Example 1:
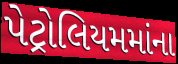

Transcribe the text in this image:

પેટ્રોલિયમમાંના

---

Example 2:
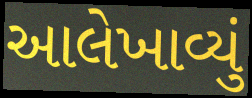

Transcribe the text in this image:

આલેખાવ્યું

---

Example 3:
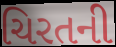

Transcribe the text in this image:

ચિરતની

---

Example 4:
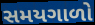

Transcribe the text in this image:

સમયગાળો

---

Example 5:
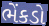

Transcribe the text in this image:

ભેંકડો